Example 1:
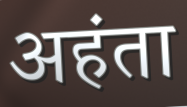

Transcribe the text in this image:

अहंता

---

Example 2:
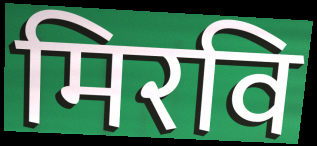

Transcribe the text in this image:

मिरवि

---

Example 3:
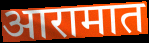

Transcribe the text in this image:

आरामात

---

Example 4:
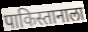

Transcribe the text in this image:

पाकिस्तानाला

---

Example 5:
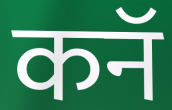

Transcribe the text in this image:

कनॅ